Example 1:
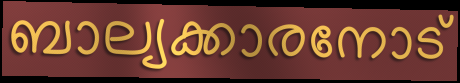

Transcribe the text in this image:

ബാല്യക്കാരനോട്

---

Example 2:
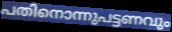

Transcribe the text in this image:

പതിനൊന്നുപട്ടണവും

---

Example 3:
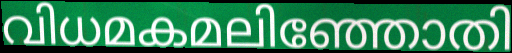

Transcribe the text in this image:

വിധമകമലിഞ്ഞോതി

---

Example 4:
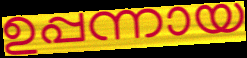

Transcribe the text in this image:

ഉപ്പന്നായ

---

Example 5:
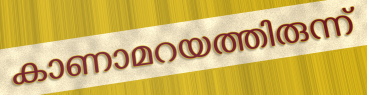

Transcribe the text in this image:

കാണാമറയത്തിരുന്ന്